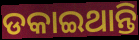
ଡକାଇଥାନ୍ତି